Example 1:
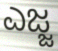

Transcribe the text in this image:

ಎಜ್ಜ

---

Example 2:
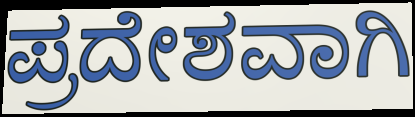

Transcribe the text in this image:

ಪ್ರದೇಶವಾಗಿ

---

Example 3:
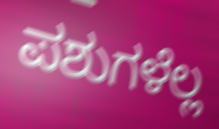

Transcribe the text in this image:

ಪಶುಗಳೆಲ್ಲ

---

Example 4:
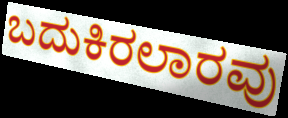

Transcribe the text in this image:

ಬದುಕಿರಲಾರವು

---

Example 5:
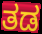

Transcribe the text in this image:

ತಡ